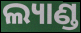
ଲ୍ୟାଣ୍ଡ